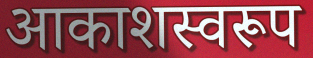
आकाशस्वरूप